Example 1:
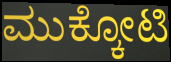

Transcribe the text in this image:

ಮುಕ್ಕೋಟಿ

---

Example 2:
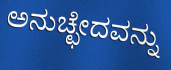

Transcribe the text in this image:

ಅನುಚ್ಛೇದವನ್ನು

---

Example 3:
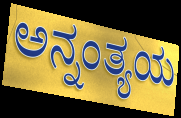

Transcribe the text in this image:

ಅನ್ನಂತ್ಯಯ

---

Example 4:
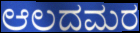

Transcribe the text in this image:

ಆಲದಮರ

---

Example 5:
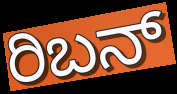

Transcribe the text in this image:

ರಿಬನ್